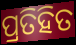
ପ୍ରତିହିତ